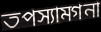
তপস্যামগনা